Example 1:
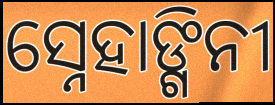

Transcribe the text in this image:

ସ୍ନେହାଙ୍ଗିନୀ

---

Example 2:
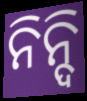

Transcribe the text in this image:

ନିନ୍ଦି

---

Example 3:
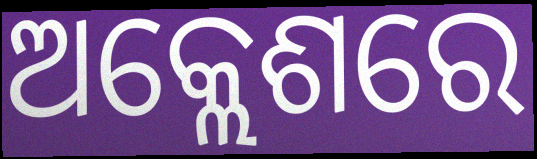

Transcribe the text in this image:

ଅକ୍ଲେଶରେ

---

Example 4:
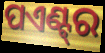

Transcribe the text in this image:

ପଏଣ୍ଟ୍‌ର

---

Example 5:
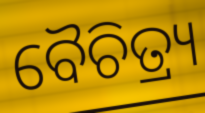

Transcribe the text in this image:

ବୈଚିତ୍ର୍ୟ